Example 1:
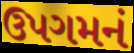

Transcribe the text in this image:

ઉપગમનં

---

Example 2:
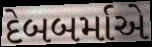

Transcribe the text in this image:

દેબબર્માએ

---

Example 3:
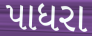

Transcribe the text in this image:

પાધરા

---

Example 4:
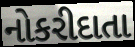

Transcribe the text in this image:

નોકરીદાતા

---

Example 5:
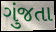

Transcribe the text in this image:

ગુંજતા